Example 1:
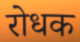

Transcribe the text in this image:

रोधक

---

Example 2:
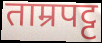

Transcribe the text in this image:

ताम्रपट्ट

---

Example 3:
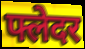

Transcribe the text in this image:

फ्लेदर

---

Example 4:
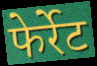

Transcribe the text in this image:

फेर्रेट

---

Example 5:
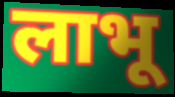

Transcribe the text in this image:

लाभू